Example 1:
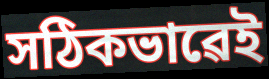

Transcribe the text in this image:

সঠিকভাৱেই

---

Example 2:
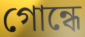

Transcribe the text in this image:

গোন্ধে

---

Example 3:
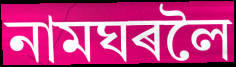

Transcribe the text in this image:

নামঘৰলৈ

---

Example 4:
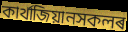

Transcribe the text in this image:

কাৰ্থাজিয়ানসকলৰ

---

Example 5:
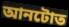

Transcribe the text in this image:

আনটোত